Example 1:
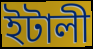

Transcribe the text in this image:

ইটালী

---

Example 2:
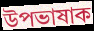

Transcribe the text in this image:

উপভাষাক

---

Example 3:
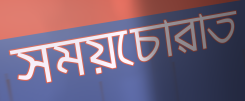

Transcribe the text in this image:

সময়চোৱাত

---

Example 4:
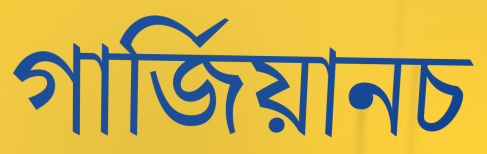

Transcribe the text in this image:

গাৰ্জিয়ানচ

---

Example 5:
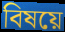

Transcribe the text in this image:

বিষয়ে